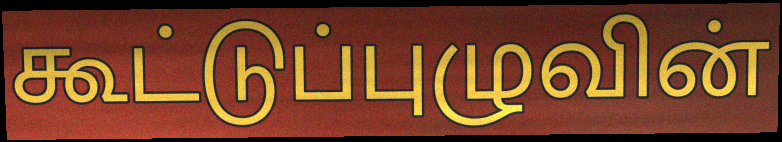
கூட்டுப்புழுவின்